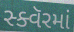
સ્ક્વૅરમાં